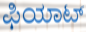
ಫಿಯಾಟ್